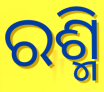
ରଶ୍ମି